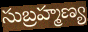
సుబ్రహ్మణ్య